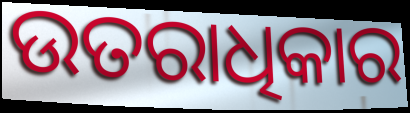
ଉତରାଧିକାର